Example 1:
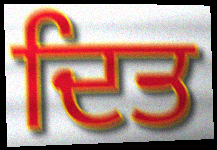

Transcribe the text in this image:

ਦਿਤ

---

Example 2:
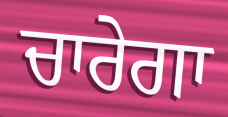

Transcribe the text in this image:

ਚਾਰੇਗਾ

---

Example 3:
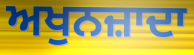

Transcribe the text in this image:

ਅਖੁਨਜ਼ਾਦਾ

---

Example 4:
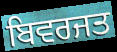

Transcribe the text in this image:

ਬਿਵਰਜਤ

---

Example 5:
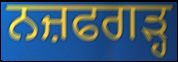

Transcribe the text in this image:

ਨਜ਼ਫਗੜ੍ਹ